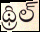
థ్రిల్